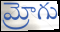
మ్రోగు